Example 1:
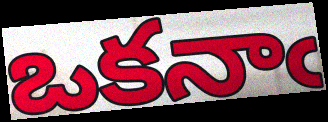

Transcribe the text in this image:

ఒకనాఁ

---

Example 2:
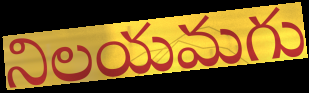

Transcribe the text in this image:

నిలయమగు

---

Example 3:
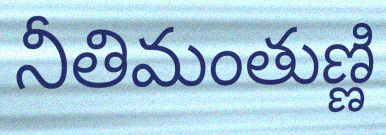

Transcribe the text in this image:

నీతిమంతుణ్ణి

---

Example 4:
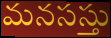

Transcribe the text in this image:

మనసస్తు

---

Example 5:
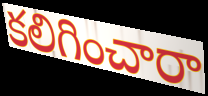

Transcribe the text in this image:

కలిగించారా